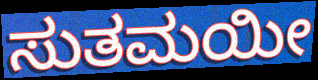
ಸುತಮಯೀ